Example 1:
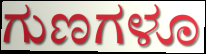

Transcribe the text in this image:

ಗುಣಗಳೂ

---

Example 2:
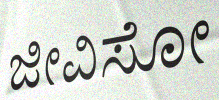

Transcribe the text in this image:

ಜೀವಿಸೋ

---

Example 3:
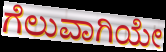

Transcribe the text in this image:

ಗೆಲುವಾಗಿಯೇ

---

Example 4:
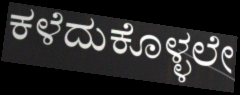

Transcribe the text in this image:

ಕಳೆದುಕೊಳ್ಳಲೇ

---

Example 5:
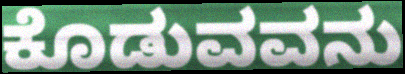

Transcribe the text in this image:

ಕೊಡುವವನು